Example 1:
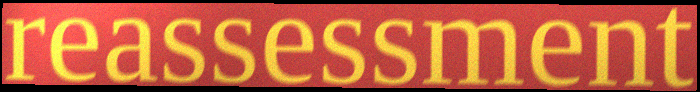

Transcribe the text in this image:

reassessment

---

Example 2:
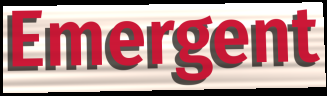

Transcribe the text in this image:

Emergent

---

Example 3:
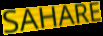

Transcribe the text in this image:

SAHARE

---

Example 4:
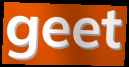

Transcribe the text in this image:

geet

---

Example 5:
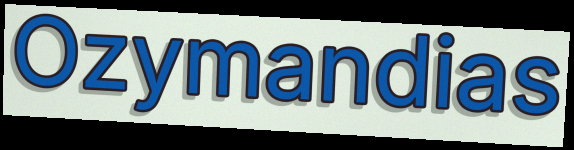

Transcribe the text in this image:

Ozymandias